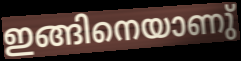
ഇങ്ങിനെയാണു്